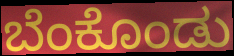
ಬೆಂಕೊಂಡು